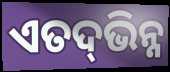
ଏତଦ୍‌ଭିନ୍ନ